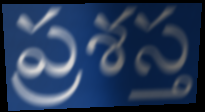
ప్రశస్త